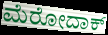
ಮೆರೋದಾಕ್